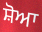
ਸ਼ੋਆ